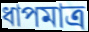
ধাপমাত্র